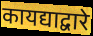
कायद्याद्वारे